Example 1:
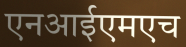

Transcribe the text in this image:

एनआईएमएच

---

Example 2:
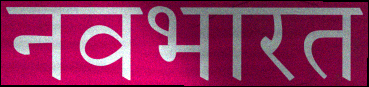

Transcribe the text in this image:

नवभारत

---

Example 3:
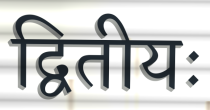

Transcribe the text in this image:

द्वितीयः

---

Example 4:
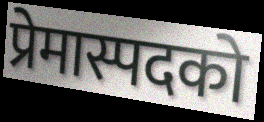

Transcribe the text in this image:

प्रेमास्पदको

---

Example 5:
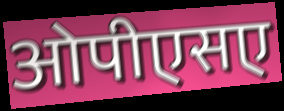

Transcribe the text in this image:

ओपीएसए